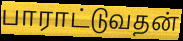
பாராட்டுவதன்